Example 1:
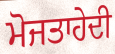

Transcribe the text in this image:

ਮੋਜਤਾਹੇਦੀ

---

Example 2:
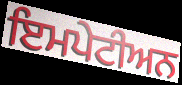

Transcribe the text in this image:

ਇਮਪੇਟੀਅਨ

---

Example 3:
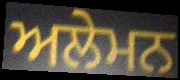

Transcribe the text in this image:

ਅਲੇਮਨ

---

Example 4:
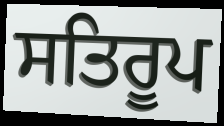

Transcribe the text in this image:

ਸਤਿਰੂਪ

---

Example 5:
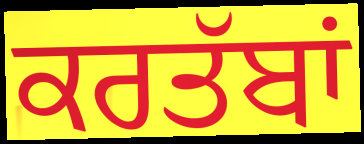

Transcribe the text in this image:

ਕਰਤੱਬਾਂ